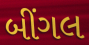
બીંગલ